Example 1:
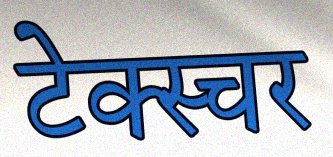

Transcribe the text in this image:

टेक्स्चर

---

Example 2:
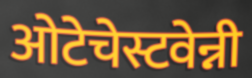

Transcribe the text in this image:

ओटेचेस्टवेन्नी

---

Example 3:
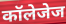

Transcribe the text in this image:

कॉलेजेज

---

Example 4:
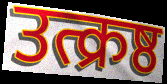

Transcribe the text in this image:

उत्क्रष्ठ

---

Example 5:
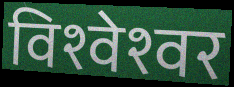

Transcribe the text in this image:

विश्वेश्वर